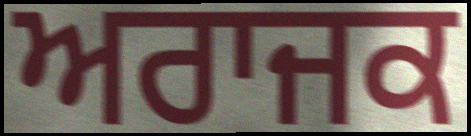
ਅਰਾਜਕ